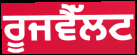
ਰੂਜਵੈੱਲਟ